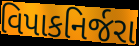
વિપાકનિર્જરા